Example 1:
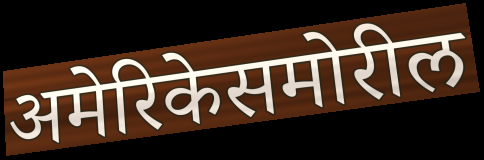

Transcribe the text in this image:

अमेरिकेसमोरील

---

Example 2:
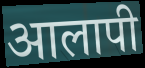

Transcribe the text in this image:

आलापी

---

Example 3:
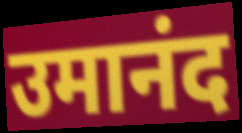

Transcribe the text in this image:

उमानंद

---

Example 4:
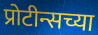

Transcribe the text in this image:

प्रोटीन्सच्या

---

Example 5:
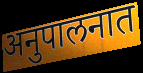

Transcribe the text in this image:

अनुपालनात